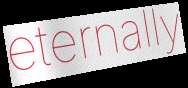
eternally